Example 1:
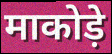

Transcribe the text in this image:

माकोड़े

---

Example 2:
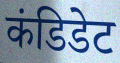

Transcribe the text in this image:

कंडिडेट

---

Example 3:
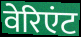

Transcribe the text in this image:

वेरिएंट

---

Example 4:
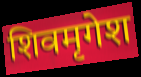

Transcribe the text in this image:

शिवमृगेश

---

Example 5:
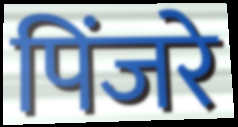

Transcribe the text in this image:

पिंजरे